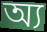
অ্য